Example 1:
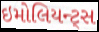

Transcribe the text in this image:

ઇમોલિયન્ટ્સ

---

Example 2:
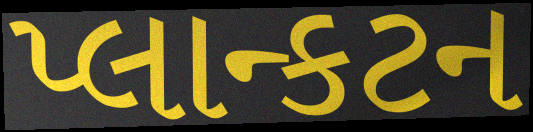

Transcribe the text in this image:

પ્લાન્કટન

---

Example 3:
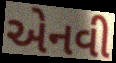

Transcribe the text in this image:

એનવી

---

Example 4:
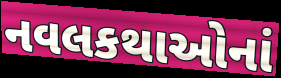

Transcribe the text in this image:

નવલકથાઓનાં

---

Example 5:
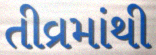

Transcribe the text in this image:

તીવ્રમાંથી